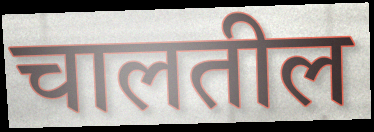
चालतील